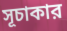
সূচাকার